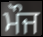
ਮੌਜ